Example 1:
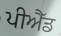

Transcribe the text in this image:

ਪੀਐੱਡ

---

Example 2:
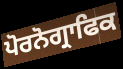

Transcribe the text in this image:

ਪੋਰਨੋਗ੍ਰਾਫਿਕ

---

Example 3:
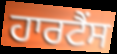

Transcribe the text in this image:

ਹਾਰਟੈਂਸ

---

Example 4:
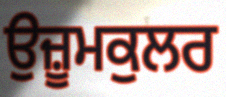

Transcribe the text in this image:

ਉਜ਼ੂਮਕੁਲਰ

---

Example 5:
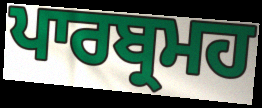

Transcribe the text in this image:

ਪਾਰਬ੍ਰਮਹ